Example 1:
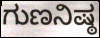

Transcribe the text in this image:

ಗುಣನಿಷ್ಠ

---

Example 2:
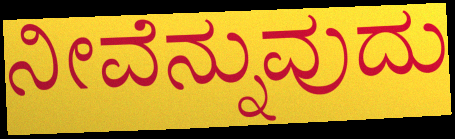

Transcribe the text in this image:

ನೀವೆನ್ನುವುದು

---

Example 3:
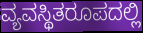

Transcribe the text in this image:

ವ್ಯವಸ್ಥಿತರೂಪದಲ್ಲಿ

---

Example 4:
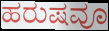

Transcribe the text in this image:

ಹರುಷವೂ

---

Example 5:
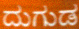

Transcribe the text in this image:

ದುಗುಡ